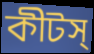
কীটস্